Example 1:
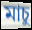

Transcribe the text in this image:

মাচু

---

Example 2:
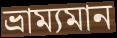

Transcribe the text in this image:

ভ্রাম্যমান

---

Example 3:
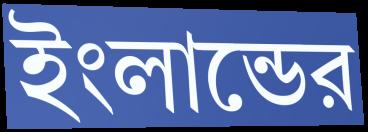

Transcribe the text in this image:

ইংলান্ডের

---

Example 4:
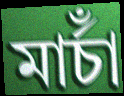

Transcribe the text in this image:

মার্চাঁ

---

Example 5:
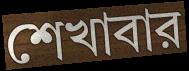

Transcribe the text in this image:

শেখাবার